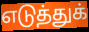
எடுத்துக்